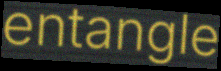
entangle